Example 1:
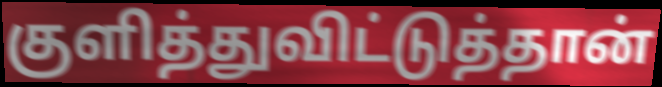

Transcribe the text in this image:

குளித்துவிட்டுத்தான்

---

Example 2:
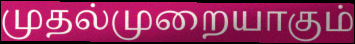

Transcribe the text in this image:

முதல்முறையாகும்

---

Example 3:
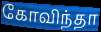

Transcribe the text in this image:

கோவிந்தா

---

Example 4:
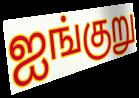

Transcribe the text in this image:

ஐங்குறு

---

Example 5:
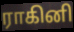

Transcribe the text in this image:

ராகினி